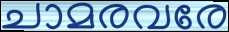
ചാമരവരേ